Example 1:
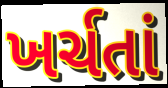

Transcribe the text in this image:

ખર્ચતાં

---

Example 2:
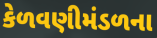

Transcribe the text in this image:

કેળવણીમંડળના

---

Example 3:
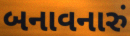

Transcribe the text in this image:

બનાવનારું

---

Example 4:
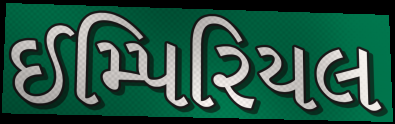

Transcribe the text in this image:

ઈમ્પિરિયલ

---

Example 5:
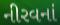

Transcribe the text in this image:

નીરવનાં